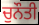
ਚੁਨੌਤੀ